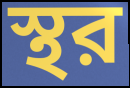
স্থর